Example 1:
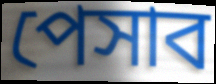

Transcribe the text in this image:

পেসাব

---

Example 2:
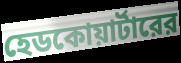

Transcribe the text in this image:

হেডকোয়ার্টারের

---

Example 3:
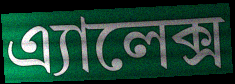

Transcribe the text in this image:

এ্যালেক্স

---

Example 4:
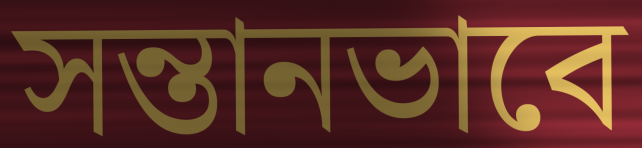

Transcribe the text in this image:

সন্তানভাবে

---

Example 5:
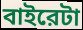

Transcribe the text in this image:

বাইরেটা